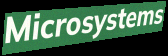
Microsystems